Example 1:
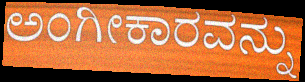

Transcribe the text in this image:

ಅಂಗೀಕಾರವನ್ನು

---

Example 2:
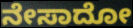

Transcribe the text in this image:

ನೇಸಾದೋ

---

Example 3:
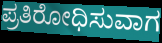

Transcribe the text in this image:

ಪ್ರತಿರೋಧಿಸುವಾಗ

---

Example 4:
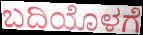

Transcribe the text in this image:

ಬದಿಯೊಳಗೆ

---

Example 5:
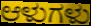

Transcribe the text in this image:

ಆಳುಗಳು